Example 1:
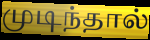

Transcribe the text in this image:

முடிந்தால்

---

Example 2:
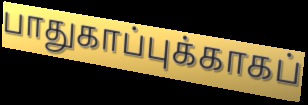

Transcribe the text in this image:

பாதுகாப்புக்காகப்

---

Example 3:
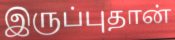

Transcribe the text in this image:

இருப்புதான்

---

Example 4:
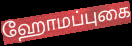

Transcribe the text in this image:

ஹோமப்புகை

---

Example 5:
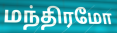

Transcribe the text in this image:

மந்திரமோ